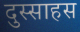
दुस्साहस